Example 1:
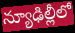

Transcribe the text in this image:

న్యూఢిల్లీలో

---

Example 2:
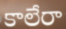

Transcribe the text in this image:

కాలేరా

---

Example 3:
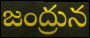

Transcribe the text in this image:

జంద్రున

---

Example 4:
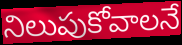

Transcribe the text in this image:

నిలుపుకోవాలనే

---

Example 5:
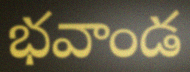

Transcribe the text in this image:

భవాండ